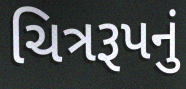
ચિત્રરૂપનું